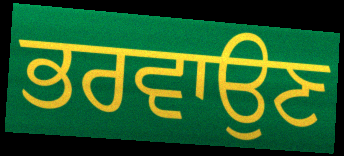
ਭਰਵਾਉਣ